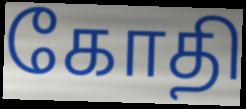
கோதி